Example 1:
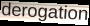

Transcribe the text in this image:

derogation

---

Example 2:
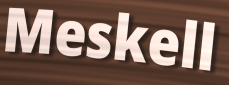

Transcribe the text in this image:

Meskell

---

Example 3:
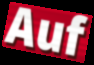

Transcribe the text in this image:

Auf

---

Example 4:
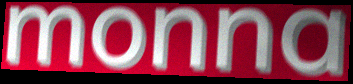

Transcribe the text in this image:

monna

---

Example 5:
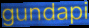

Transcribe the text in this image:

gundapi